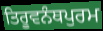
ਤਿਰੂਵਨੰਥਪੁਰਮ